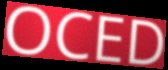
OCED